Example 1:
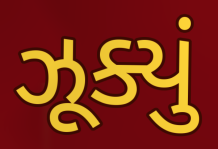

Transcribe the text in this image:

ઝૂક્યું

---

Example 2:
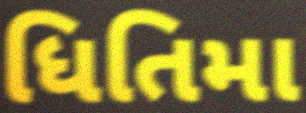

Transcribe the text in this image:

ધિતિમા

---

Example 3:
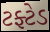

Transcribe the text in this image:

ટફ્ટેડ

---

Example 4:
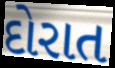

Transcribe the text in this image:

દોરાત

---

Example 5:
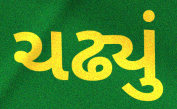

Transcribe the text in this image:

ચઢ્યું